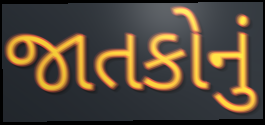
જાતકોનું